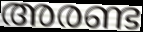
അരണ്ട